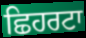
ਛਿਹਰਟਾ